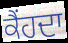
ਕੈਂਹਦਾ